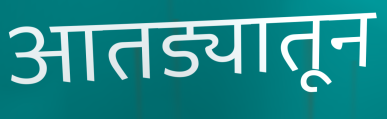
आतड्यातून